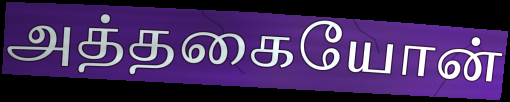
அத்தகையோன்